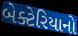
બેક્ટેરિયાનો